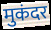
मुकंदर